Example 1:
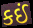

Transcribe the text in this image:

કઈં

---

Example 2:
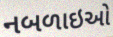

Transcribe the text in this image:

નબળાઇઓ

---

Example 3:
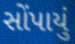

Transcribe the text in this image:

સોંપાયું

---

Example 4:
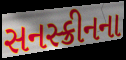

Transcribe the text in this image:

સનસ્ક્રીનના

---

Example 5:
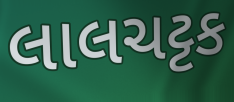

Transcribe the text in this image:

લાલચટ્ટક